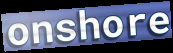
onshore